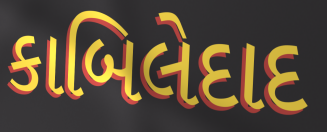
કાબિલેદાદ